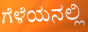
ಗೆಳೆಯನಲ್ಲಿ